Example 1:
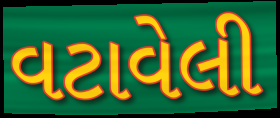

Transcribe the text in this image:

વટાવેલી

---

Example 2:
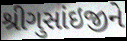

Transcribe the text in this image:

શ્રીગુસાંઇજીને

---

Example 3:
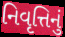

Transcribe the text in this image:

નિવૃત્તિનું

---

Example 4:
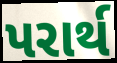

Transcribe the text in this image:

પરાર્થ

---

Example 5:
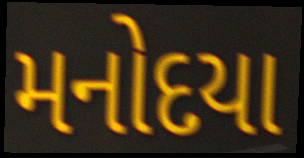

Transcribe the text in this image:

મનોદયા